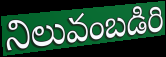
నిలువంబడిరి